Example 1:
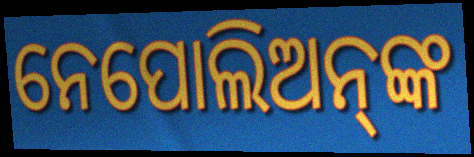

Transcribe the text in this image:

ନେପୋଲିଅନ୍‌ଙ୍କ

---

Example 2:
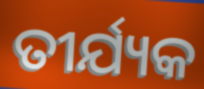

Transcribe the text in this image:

ତୀର୍ଯ୍ୟକ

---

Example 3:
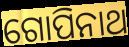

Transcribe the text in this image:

ଗୋପିନାଥ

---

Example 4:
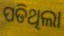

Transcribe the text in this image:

ପଡିଥିଲା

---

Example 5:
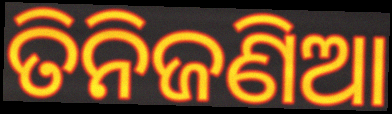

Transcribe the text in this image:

ତିନିଜଣିଆ